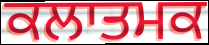
ਕਲਾਤਮਕ